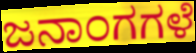
ಜನಾಂಗಗಳೆ